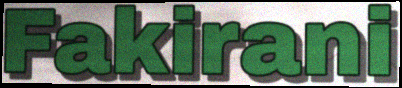
Fakirani